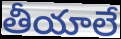
తీయాలే